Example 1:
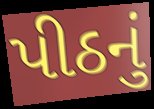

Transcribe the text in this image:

પીઠનું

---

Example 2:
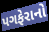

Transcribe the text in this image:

પગફેરાનો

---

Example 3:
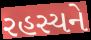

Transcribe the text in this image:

રહસ્યને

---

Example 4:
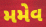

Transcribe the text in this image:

મમેવ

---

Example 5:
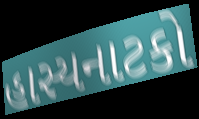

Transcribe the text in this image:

હાસ્યનાટકો